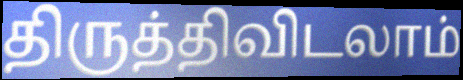
திருத்திவிடலாம்